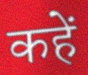
कहें